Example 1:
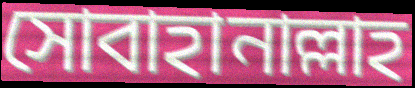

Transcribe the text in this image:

সোবাহানাল্লাহ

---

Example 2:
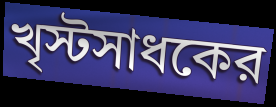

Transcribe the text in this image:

খৃস্টসাধকের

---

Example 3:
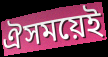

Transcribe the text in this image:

ঐসময়েই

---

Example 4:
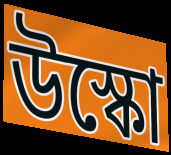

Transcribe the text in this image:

উস্কো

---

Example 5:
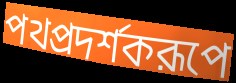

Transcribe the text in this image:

পথপ্রদর্শকরূপে